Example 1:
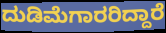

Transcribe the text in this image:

ದುಡಿಮೆಗಾರರಿದ್ದಾರೆ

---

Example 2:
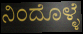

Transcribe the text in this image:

ನಿಂದೊಳ್ಳೆ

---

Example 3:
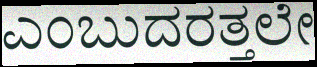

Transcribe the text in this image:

ಎಂಬುದರತ್ತಲೇ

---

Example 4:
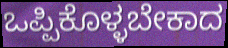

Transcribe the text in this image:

ಒಪ್ಪಿಕೊಳ್ಳಬೇಕಾದ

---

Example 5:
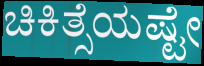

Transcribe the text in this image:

ಚಿಕಿತ್ಸೆಯಷ್ಟೇ